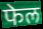
फेल